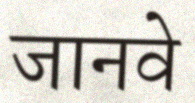
जानवे